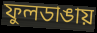
ফুলডাঙায়